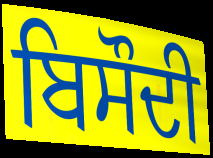
ਬਿਸੌਦੀ